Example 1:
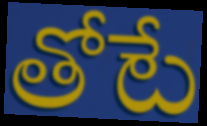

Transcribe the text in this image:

తోటే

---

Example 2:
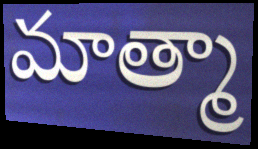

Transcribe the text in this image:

మాత్మా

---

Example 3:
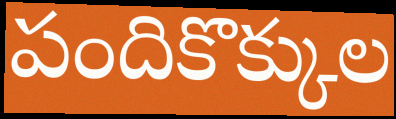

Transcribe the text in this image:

పందికొక్కుల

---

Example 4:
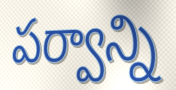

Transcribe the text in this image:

పర్వాన్ని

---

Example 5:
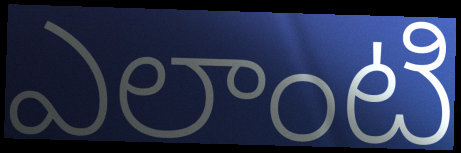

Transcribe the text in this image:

ఎలాంటి